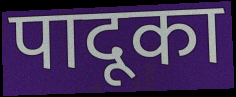
पादूका